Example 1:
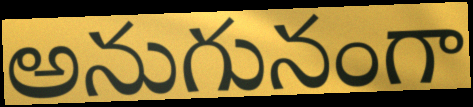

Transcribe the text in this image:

అనుగునంగా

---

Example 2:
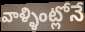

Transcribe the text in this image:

వాళ్ళింట్లోనే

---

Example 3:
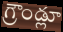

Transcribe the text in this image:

గ్రౌండ్లూ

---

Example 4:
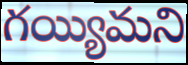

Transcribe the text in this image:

గయ్యిమని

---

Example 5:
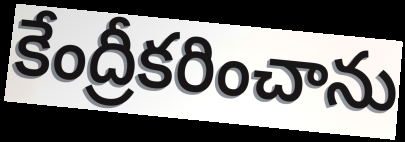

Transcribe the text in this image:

కేంద్రీకరించాను